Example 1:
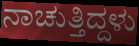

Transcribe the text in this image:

ನಾಚುತ್ತಿದ್ದಳು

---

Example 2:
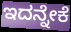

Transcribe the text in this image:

ಇದನ್ನೇಕೆ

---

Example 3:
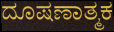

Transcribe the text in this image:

ದೂಷಣಾತ್ಮಕ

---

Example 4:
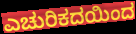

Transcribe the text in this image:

ಎಚುರಿಕದಯಿಂದ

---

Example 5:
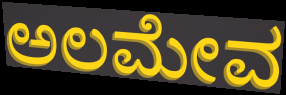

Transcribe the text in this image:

ಅಲಮೇವ